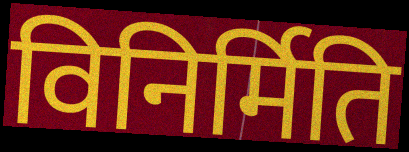
विनिर्मिति